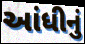
આંધીનું